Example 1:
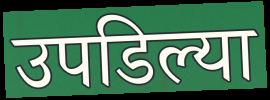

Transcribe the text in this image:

उपडिल्या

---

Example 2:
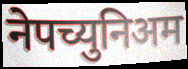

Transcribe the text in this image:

नेपच्युनिअम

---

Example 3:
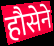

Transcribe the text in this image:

हौसेने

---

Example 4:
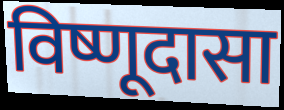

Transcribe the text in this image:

विष्णूदासा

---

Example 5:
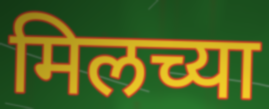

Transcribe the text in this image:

मिलच्या